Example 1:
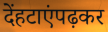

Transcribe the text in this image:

देंहटाएंपढ़कर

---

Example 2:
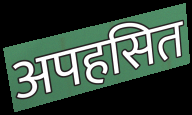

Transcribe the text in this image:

अपहसित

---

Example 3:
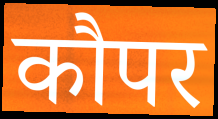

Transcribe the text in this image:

कौपर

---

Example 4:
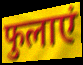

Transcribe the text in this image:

फुलाएं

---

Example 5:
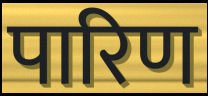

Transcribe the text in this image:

पारिण